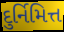
દુર્નિમિત્ત